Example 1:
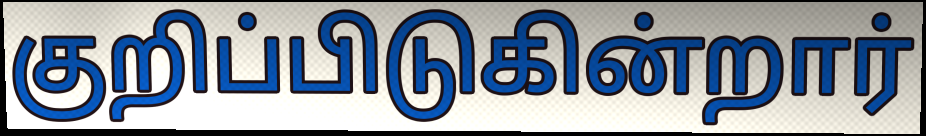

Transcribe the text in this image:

குறிப்பிடுகின்றார்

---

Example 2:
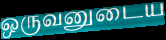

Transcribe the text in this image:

ஒருவனுடைய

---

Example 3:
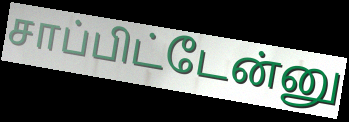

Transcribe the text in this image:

சாப்பிட்டேன்னு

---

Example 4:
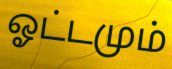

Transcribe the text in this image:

ஓட்டமும்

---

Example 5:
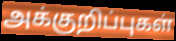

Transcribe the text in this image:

அக்குறிப்புகள்